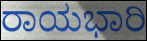
ರಾಯಭಾರಿ